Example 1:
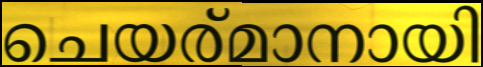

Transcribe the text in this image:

ചെയര്മാനായി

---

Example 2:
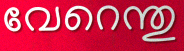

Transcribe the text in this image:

വേറെന്തു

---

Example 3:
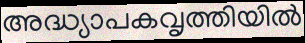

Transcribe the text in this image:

അദ്ധ്യാപകവൃത്തിയിൽ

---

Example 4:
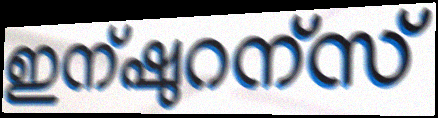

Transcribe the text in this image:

ഇന്ഷുറന്സ്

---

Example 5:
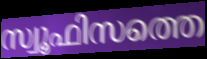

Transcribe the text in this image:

സ്വൂഫിസത്തെ